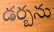
డర్బను